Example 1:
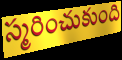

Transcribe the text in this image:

స్మరించుకుంది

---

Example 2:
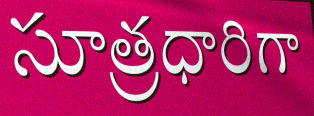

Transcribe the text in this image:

సూత్రధారిగా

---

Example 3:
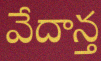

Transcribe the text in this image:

వేదాన్త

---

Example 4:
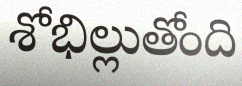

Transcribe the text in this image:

శోభిల్లుతోంది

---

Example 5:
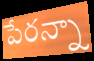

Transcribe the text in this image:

పేరన్నా